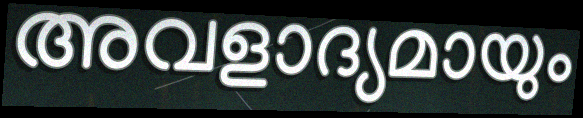
അവളാദ്യമായും